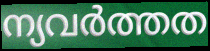
ന്യവർത്തത